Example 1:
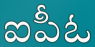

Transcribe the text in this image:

ఐపీఓ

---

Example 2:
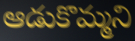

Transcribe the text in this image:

ఆడుకొమ్మని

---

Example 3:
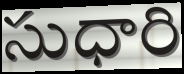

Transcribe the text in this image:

సుధారి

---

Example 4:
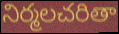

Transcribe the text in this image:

నిర్మలచరితా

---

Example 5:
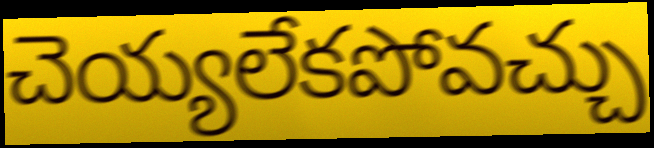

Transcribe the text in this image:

చెయ్యలేకపోవచ్చు